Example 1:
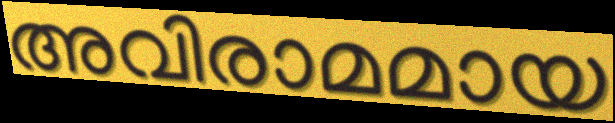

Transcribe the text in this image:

അവിരാമമായ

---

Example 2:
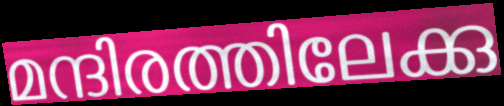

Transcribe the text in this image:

മന്ദിരത്തിലേക്കു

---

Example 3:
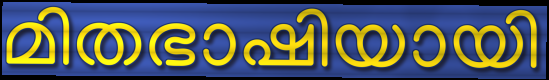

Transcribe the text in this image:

മിതഭാഷിയായി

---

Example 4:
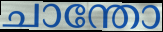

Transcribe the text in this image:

ചാന്തോ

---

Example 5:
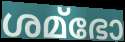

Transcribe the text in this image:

ശമ്ഭോ